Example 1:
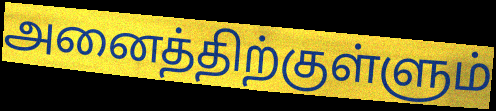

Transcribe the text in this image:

அனைத்திற்குள்ளும்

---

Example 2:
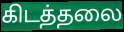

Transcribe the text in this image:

கிடத்தலை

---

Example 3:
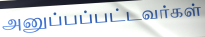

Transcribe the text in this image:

அனுப்பப்பட்டவர்கள்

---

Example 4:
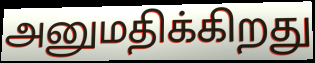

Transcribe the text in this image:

அனுமதிக்கிறது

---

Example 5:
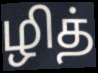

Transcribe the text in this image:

ழித்